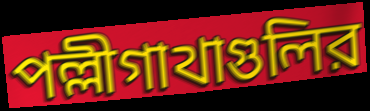
পল্লীগাথাগুলির